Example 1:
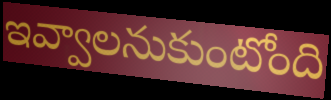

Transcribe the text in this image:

ఇవ్వాలనుకుంటోంది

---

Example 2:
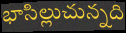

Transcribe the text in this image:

భాసిల్లుచున్నది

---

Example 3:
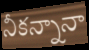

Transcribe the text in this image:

నీకన్నానా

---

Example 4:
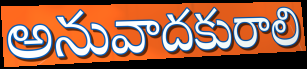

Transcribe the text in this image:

అనువాదకురాలి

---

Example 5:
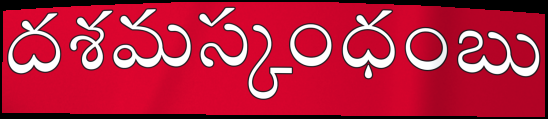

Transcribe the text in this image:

దశమస్కంధంబు